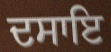
ਦਸਾਇ